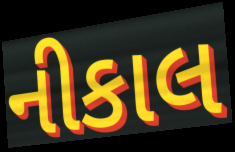
નીકાલ